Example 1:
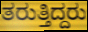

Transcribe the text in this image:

ತರುತ್ತಿದ್ದರು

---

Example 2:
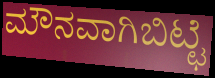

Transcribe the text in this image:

ಮೌನವಾಗಿಬಿಟ್ಟೆ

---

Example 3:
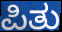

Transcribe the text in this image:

ಪಿತು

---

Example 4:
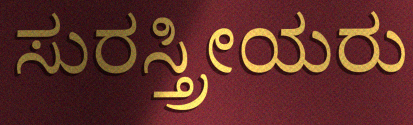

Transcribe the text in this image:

ಸುರಸ್ತ್ರೀಯರು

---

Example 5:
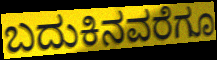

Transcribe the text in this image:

ಬದುಕಿನವರೆಗೂ